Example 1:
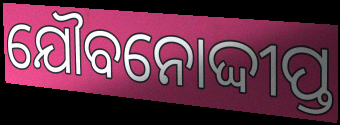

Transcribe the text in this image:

ଯୌବନୋଦ୍ଦୀପ୍ତ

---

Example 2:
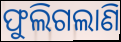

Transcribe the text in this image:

ଫୁଲିଗଲାଣି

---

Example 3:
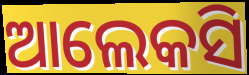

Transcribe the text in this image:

ଆଲେକସି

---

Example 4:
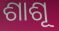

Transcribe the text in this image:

ଶାଶୂ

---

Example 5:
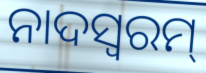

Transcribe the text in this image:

ନାଦସ୍ଵରମ୍